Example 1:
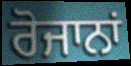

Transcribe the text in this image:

ਰੋਜਾਨਾਂ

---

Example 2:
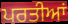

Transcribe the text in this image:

ਪਰਤੀਆਂ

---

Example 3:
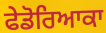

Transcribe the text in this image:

ਫੇਡੋਰਿਆਕਾ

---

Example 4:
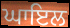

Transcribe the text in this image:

ਘਾਇਲ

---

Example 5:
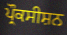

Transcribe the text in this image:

ਪ੍ਰੌਕਸੀਸ਼ਨ